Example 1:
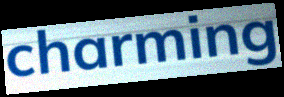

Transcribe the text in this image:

charming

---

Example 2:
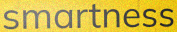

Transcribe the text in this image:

smartness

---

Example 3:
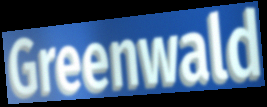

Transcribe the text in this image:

Greenwald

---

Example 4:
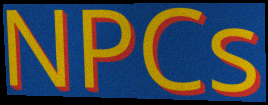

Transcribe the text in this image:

NPCs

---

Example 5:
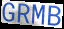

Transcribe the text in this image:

GRMB